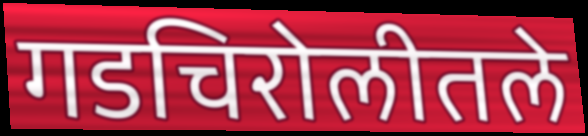
गडचिरोलीतले